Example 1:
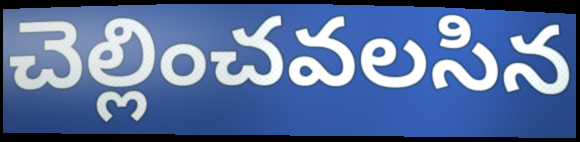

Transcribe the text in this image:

చెల్లించవలసిన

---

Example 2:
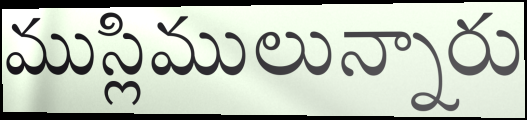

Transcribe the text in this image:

ముస్లిములున్నారు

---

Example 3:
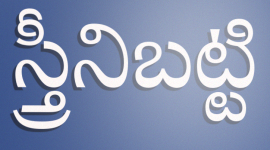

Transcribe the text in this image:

స్త్రీనిబట్టి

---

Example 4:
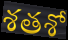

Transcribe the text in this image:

శతశో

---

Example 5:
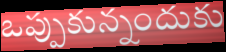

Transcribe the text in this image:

ఒప్పుకున్నందుకు